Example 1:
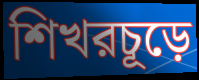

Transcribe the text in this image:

শিখরচূড়ে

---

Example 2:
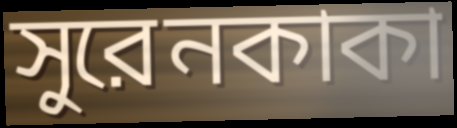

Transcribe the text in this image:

সুরেনকাকা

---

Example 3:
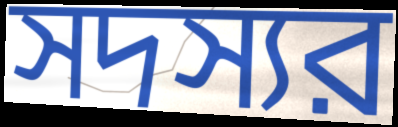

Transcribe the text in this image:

সদস্যর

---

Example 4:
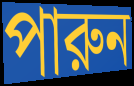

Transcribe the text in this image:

পারুন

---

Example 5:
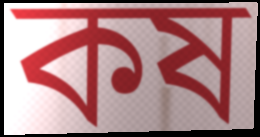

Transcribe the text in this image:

কষ